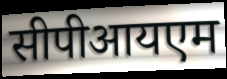
सीपीआयएम